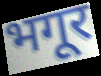
भगूर